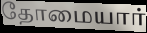
தோமையார்